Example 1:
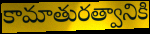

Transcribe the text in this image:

కామాతురత్వానికి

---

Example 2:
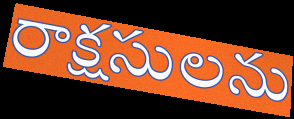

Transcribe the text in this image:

రాక్షసులను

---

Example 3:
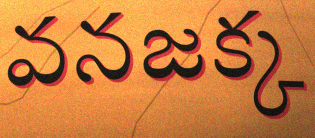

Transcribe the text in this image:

వనజక్క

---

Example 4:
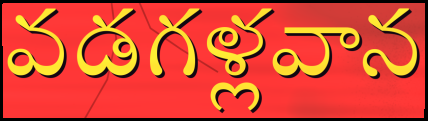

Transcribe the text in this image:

వడగళ్లవాన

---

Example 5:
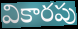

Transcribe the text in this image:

వికారపు